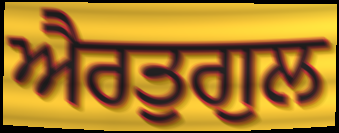
ਐਰਤੁਗੁਲ